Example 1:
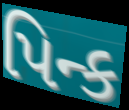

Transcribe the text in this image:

પિન્ક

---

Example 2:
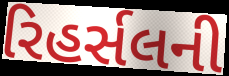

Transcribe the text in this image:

રિહર્સલની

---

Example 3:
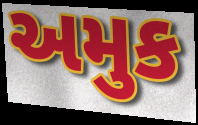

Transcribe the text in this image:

અમુક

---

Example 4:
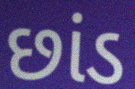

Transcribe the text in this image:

છાંડ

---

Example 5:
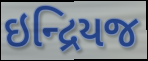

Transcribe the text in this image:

ઇન્દ્રિયજ